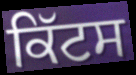
ਕਿੱਟਸ